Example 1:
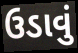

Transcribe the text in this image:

ઉડાવું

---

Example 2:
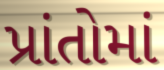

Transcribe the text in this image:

પ્રાંતોમાં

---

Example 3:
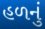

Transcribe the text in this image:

હળનું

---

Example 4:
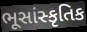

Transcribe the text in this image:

ભૂસાંસ્કૃતિક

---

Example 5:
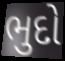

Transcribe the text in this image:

ભુદો